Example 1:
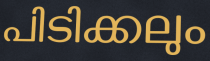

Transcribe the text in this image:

പിടിക്കലും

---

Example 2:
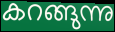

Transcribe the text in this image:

കറങ്ങുന്നു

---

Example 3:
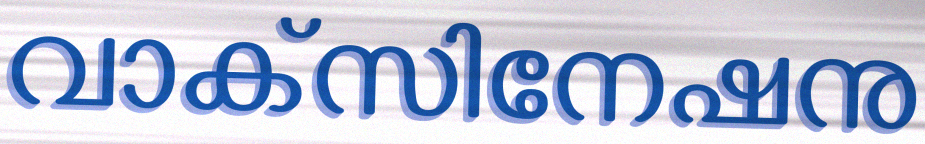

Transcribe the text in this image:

വാക്‌സിനേഷനു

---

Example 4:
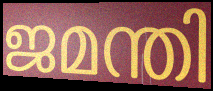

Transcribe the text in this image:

ജമന്തി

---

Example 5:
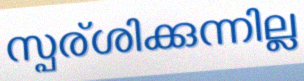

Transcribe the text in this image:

സ്പര്ശിക്കുന്നില്ല